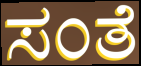
ಸಂತೆ